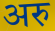
अरु